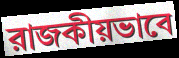
রাজকীয়ভাবে